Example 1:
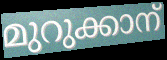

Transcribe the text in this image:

മുറുക്കാന്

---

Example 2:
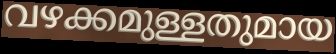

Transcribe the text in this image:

വഴക്കമുള്ളതുമായ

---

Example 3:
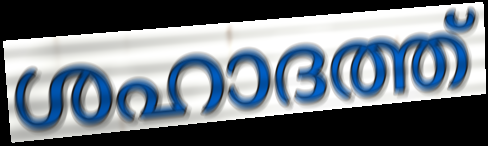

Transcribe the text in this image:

ശഹാദത്ത്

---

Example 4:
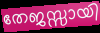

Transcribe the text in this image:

തേജസ്സായി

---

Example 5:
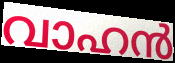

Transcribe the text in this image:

വാഹൻ